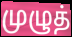
முழுத்